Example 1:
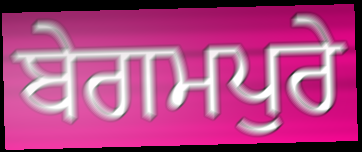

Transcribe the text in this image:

ਬੇਗਮਪੁਰੇ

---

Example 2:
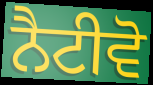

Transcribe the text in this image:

ਨੈਟੀਵੋ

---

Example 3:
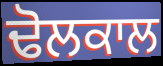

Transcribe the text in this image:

ਢੋਲਕਾਲ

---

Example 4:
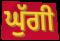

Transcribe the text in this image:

ਘੁੱਗੀ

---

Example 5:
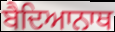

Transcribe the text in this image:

ਬੈਦਿਆਨਾਥ